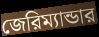
জেরিম্যান্ডার